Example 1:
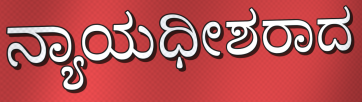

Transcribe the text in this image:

ನ್ಯಾಯಧೀಶರಾದ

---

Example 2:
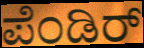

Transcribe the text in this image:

ಪೆಂಡಿರ್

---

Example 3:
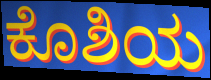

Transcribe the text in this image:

ಕೊಶಿಯ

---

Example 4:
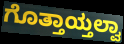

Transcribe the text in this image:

ಗೊತ್ತಾಯ್ತಲ್ವಾ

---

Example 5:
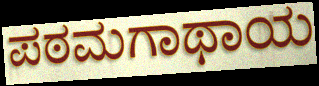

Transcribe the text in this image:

ಪಠಮಗಾಥಾಯ